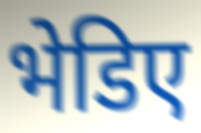
भेडिए